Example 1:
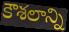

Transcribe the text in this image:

కౌశలాన్ని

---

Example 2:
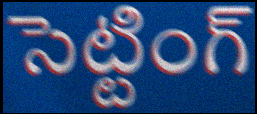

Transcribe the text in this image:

సెట్టింగ్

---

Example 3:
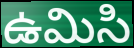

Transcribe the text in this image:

ఉమిసి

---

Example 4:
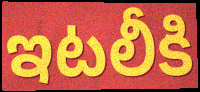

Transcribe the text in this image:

ఇటలీకి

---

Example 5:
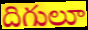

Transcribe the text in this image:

దిగులూ